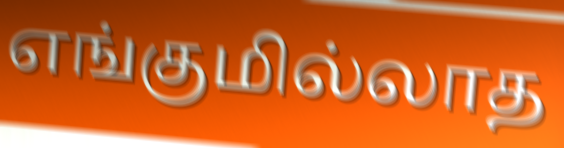
எங்குமில்லாத